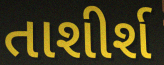
તાશીર્શ